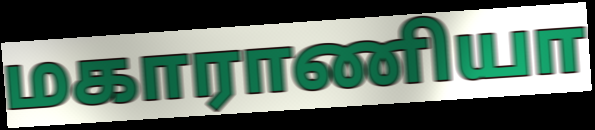
மகாராணியா